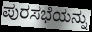
ಪುರಸಭೆಯನ್ನು